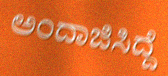
ಅಂದಾಜಿಸಿದ್ದೆ